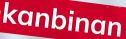
kanbinan